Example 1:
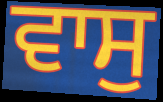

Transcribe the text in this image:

ਵਾਸੁ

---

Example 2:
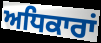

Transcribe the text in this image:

ਅਧਿਕਾਰਾਂ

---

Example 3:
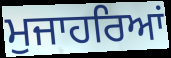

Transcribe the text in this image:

ਮੁਜਾਹਰਿਆਂ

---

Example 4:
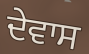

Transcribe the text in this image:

ਦੇਵਾਸ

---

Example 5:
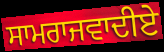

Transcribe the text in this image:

ਸਾਮਰਾਜਵਾਦੀਏ